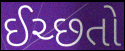
ઈચ્છતો